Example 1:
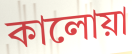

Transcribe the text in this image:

কালোয়া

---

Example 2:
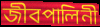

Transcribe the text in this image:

জীবপালিনী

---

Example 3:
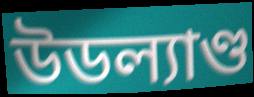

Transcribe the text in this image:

উডল্যাণ্ড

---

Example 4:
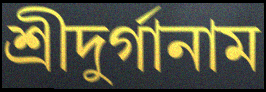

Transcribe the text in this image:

শ্রীদুর্গানাম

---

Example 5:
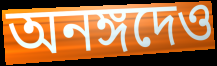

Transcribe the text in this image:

অনঙ্গদেও